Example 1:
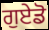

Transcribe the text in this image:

ਗੁਏਡੋ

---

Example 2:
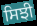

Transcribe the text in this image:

ਸਿਝੀ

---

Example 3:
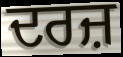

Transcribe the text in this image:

ਦਰਜ਼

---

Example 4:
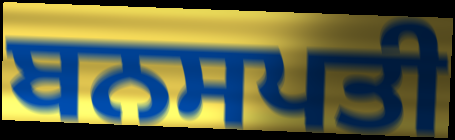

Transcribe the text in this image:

ਬਨਸਪਤੀ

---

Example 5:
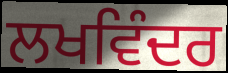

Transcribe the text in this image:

ਲਖਵਿੰਦਰ